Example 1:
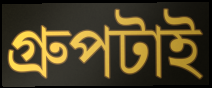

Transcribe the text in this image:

গ্রুপটাই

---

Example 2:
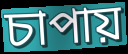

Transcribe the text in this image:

চাপায়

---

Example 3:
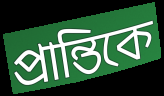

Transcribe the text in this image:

প্রান্তিকে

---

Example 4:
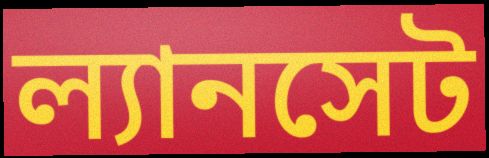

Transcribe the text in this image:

ল্যানসেট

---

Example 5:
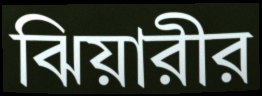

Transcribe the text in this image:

ঝিয়ারীর